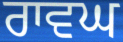
ਰਾਵਘ